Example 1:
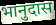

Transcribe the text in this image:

भानुदास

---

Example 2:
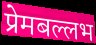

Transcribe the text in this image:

प्रेमबल्लभ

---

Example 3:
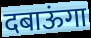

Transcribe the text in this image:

दबाऊंगा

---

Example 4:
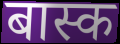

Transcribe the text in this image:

बास्क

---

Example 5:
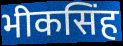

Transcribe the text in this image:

भीकसिंह